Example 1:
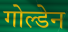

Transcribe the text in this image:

गोल्डेन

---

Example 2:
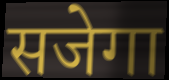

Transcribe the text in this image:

सजेगा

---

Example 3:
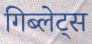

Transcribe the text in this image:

गिब्लेट्स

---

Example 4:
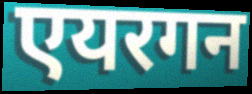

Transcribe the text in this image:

एयरगन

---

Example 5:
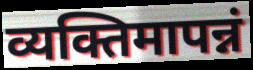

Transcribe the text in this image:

व्यक्तिमापन्नं